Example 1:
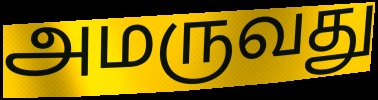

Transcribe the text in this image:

அமருவது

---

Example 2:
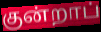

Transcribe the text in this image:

குன்றாப்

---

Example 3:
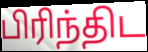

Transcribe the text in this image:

பிரிந்திட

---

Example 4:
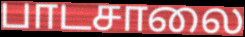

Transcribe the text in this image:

பாடசாலை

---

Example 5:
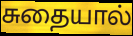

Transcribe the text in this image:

சுதையால்